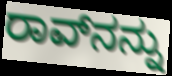
ರಾವ್‌ನನ್ನು